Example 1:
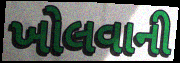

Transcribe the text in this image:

ખોલવાની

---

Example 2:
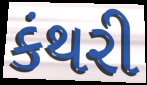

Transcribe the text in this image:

કંથરી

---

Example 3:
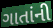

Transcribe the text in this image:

ગાતાંની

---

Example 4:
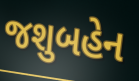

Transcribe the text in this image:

જશુબહેન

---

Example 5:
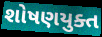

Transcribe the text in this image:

શોષણયુક્ત